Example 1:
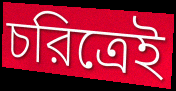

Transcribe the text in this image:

চরিত্রেই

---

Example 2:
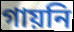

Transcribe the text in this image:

গায়নি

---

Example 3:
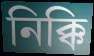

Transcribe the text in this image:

নিক্কি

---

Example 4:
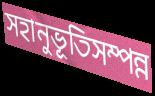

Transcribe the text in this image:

সহানুভূতিসম্পন্ন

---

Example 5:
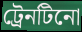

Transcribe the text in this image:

ট্রেনটিনো